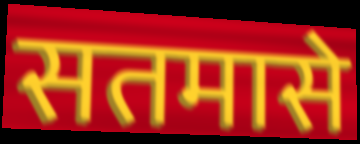
सतमासे